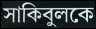
সাকিবুলকে